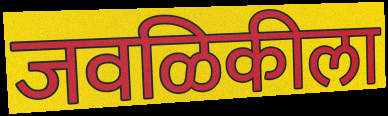
जवळिकीला